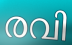
രവി